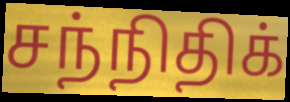
சந்நிதிக்